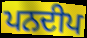
ਪਨਦੀਪ